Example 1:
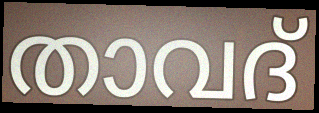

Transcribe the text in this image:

താവദ്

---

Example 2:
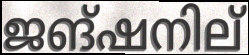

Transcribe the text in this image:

ജങ്ഷനില്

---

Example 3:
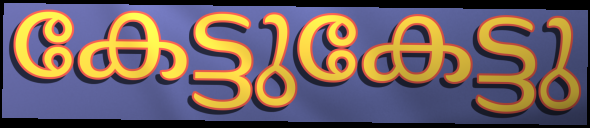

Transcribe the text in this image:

കേട്ടുകേട്ടു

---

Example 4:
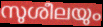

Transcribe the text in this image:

സുശീലയും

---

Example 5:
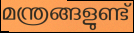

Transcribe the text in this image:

മന്ത്രങ്ങളുണ്ട്